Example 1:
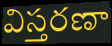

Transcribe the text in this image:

విస్తరణా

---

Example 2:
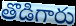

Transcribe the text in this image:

తొడిగారు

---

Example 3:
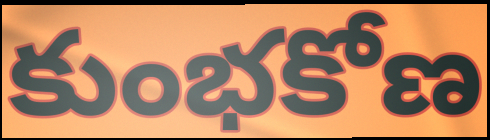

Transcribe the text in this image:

కుంభకోణ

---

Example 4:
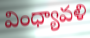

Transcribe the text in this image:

వింధ్యావళి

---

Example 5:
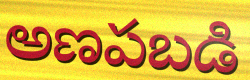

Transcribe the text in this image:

అణపబడి